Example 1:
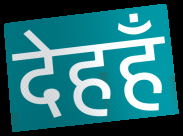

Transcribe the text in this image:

देहहँ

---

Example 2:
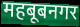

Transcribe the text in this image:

महबूबनगर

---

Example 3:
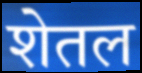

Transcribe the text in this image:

शेतल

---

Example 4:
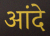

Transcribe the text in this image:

आंदे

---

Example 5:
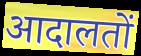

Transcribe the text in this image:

आदालतों